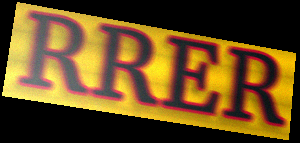
RRER